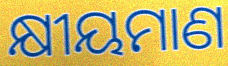
କ୍ଷୀୟମାଣ